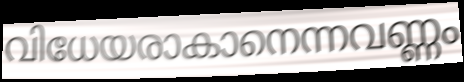
വിധേയരാകാനെന്നവണ്ണം